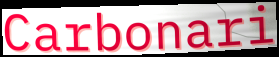
Carbonari